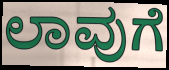
ಲಾವುಗೆ